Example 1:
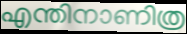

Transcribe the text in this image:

എന്തിനാണിത്ര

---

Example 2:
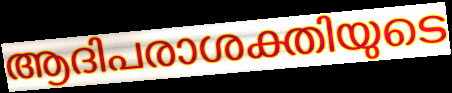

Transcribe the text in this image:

ആദിപരാശക്തിയുടെ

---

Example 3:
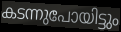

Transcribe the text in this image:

കടന്നുപോയിട്ടും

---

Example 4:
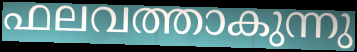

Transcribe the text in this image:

ഫലവത്താകുന്നു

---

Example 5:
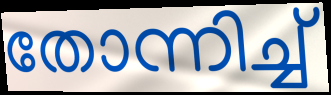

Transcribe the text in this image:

തോന്നിച്ച്